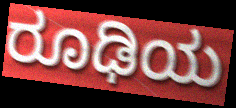
ರೂಢಿಯ